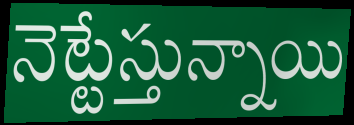
నెట్టేస్తున్నాయి